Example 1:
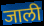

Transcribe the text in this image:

जाली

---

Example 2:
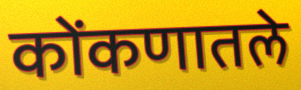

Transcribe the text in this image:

कोंकणातले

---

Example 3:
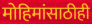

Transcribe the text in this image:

मोहिमांसाठीही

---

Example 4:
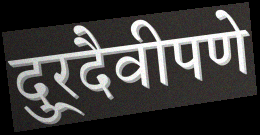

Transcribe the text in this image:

दुर्दैवीपणे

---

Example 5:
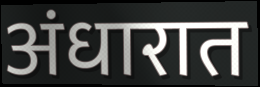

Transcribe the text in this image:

अंधारात